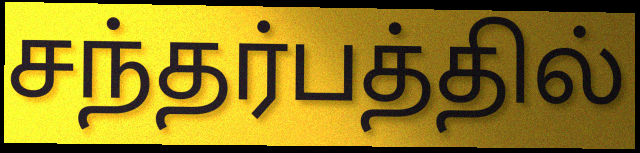
சந்தர்பத்தில்